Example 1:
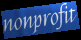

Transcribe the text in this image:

nonprofit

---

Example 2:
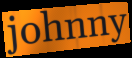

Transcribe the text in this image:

johnny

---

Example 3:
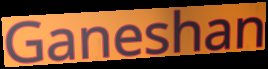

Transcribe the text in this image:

Ganeshan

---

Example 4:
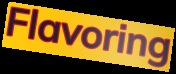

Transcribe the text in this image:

Flavoring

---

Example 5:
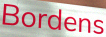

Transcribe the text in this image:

Bordens